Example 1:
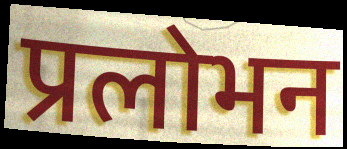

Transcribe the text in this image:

प्रलोभन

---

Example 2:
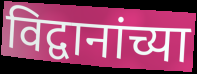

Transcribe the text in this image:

विद्वानांच्या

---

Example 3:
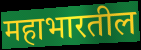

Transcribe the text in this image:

महाभारतील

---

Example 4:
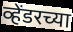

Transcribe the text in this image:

व्हेंडरच्या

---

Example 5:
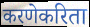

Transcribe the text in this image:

करणेकरिता